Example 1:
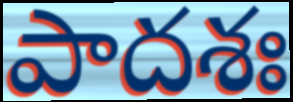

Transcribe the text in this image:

పాదశః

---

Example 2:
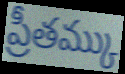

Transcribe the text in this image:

ప్రీతమ్కు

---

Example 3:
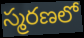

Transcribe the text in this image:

స్మరణలో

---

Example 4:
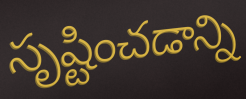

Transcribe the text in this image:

సృష్టించడాన్ని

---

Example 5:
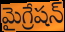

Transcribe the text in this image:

మైగ్రేషన్